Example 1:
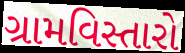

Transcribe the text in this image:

ગ્રામવિસ્તારો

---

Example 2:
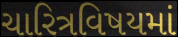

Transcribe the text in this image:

ચારિત્રવિષયમાં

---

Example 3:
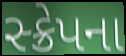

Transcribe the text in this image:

સ્ક્રેપના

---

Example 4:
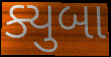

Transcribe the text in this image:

ક્યુબા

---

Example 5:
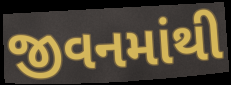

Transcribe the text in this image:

જીવનમાંથી